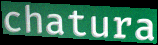
chatura